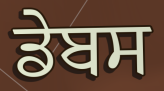
ਡੇਬਸ